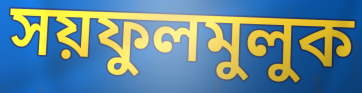
সয়ফুলমুলুক